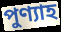
পুণ্যাহ